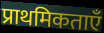
प्राथमिकताएँ